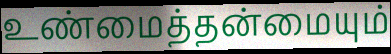
உண்மைத்தன்மையும்